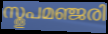
സ്തൂപമഞ്ജരി